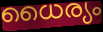
ധൈര്യം